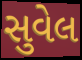
સુવેલ